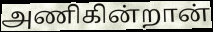
அணிகின்றான்